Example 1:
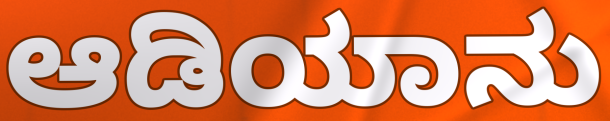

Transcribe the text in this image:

ಆಡಿಯಾನು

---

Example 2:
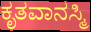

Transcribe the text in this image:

ಕೃತವಾನಸ್ಮಿ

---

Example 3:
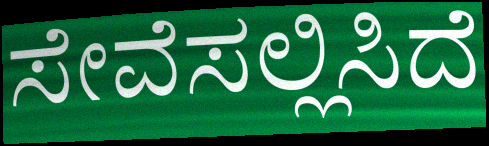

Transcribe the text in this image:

ಸೇವೆಸಲ್ಲಿಸಿದೆ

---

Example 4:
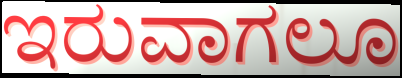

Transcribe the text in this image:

ಇರುವಾಗಲೂ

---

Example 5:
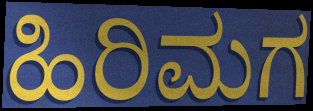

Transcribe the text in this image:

ಹಿರಿಮಗ